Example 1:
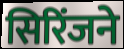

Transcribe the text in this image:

सिरिंजने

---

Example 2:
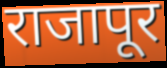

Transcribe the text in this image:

राजापूर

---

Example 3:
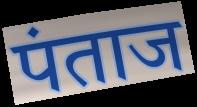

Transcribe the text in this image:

पंताज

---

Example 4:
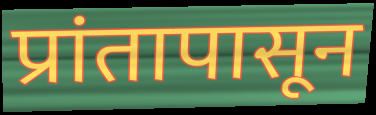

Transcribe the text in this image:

प्रांतापासून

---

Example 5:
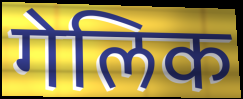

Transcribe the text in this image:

गेलिक